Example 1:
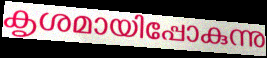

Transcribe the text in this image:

കൃശമായിപ്പോകുന്നു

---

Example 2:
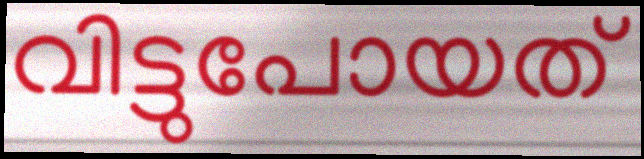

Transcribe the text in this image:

വിട്ടുപോയത്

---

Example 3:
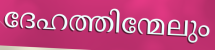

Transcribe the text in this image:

ദേഹത്തിന്മേലും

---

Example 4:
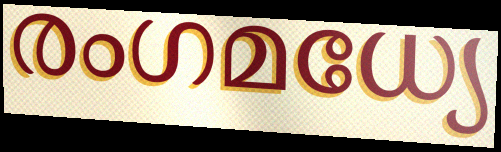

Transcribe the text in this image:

രംഗമധ്യേ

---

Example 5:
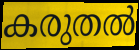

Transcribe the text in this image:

കരുതൽ